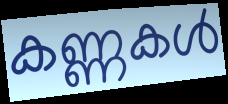
കണ്ണകൾ